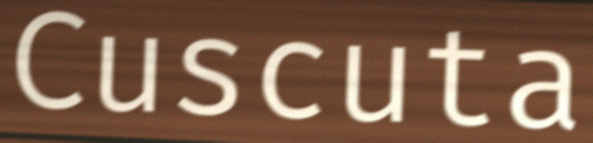
Cuscuta